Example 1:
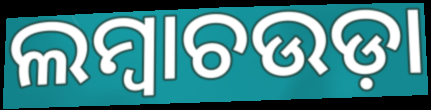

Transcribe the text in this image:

ଲମ୍ବାଚଉଡ଼ା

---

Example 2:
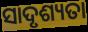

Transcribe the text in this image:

ସାଦୃଶ୍ୟତା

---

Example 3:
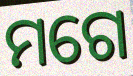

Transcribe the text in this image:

ମଗେ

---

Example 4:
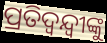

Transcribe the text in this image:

ପ୍ରତିଦ୍ବନ୍ଦ୍ବୀଙ୍କୁ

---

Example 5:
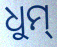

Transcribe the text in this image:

ଧୁମ୍